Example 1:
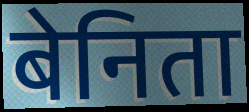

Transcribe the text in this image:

बेनिता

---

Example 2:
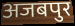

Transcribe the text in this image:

अजबपुर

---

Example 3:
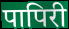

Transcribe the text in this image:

पापिरी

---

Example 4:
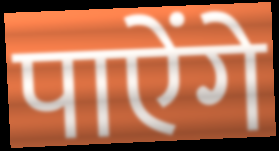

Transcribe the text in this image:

पाऐंगे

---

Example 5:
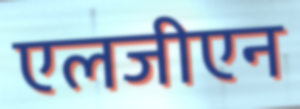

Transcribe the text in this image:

एलजीएन